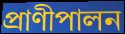
প্রাণীপালন